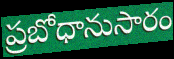
ప్రబోధానుసారం